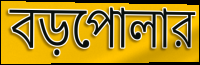
বড়পোলার